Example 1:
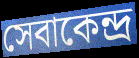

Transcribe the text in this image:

সেবাকেন্দ্র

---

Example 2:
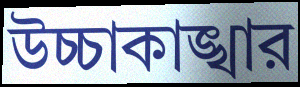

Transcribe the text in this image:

উচ্চাকাঙ্খার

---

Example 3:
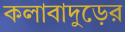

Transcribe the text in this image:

কলাবাদুড়ের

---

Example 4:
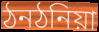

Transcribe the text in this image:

ঠনঠনিয়া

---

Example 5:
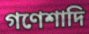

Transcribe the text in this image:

গণেশাদি